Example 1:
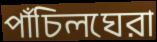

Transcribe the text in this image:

পাঁচিলঘেরা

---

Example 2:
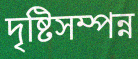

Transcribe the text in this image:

দৃষ্টিসম্পন্ন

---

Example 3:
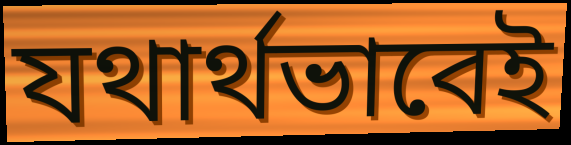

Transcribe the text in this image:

যথার্থভাবেই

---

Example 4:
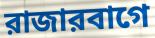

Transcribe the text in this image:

রাজারবাগে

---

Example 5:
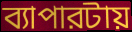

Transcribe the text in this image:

ব্যাপারটায়